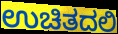
ಉಚಿತದಲಿ